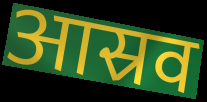
आस्रव